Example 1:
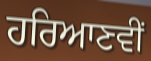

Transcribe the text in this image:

ਹਰਿਆਣਵੀਂ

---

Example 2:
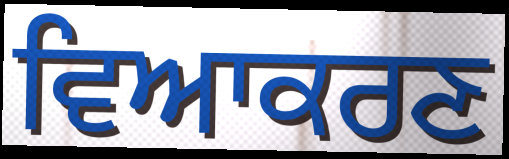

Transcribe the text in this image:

ਵਿਆਕਰਣ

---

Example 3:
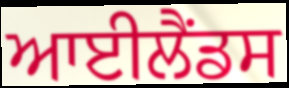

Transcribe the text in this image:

ਆਈਲੈਂਡਸ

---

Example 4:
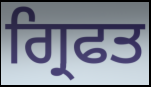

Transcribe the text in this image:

ਗ੍ਰਿਫਤ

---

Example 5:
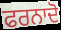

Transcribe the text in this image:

ਫਰਨਾਦੋ